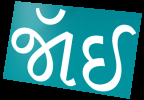
જૉઈ